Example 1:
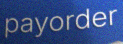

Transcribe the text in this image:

payorder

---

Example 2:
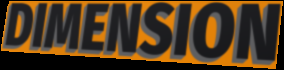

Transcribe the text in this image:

DIMENSION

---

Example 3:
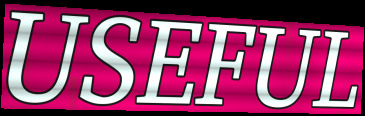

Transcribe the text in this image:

USEFUL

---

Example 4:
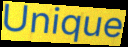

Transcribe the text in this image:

Unique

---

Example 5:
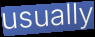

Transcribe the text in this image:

usually